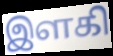
இளகி